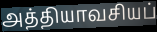
அத்தியாவசியப்